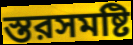
স্তরসমষ্টি